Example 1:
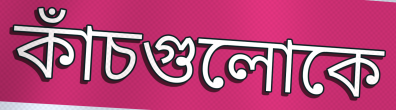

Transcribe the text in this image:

কাঁচগুলোকে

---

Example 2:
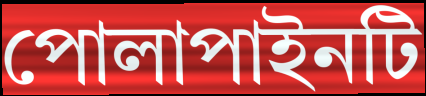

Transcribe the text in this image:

পোলাপাইনটি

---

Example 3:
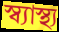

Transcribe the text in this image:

স্ব্যাস্থ্য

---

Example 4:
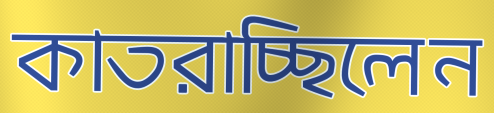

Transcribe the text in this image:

কাতরাচ্ছিলেন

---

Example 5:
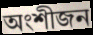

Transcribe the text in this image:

অংশীজন